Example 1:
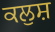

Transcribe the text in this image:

ਕਲੁਸ਼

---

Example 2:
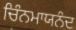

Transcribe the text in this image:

ਚਿੰਨਮਾਯਨੰਦ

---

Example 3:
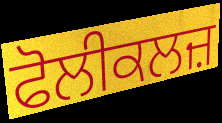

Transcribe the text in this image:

ਫੋਲੀਕਲਜ਼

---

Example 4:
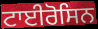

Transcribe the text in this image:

ਟਾਈਰੋਸਿਨ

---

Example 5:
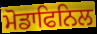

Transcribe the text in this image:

ਮੋਡਾਫਿਨਿਲ